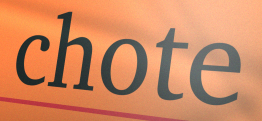
chote